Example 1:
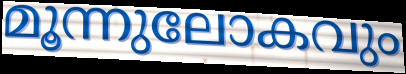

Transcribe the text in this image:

മൂന്നുലോകവും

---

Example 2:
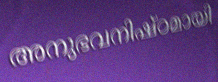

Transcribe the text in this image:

അനുഭവനിഷ്ഠമായി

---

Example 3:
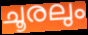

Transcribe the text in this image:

ചൂരലും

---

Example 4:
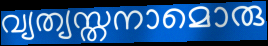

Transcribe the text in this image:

വ്യത്യസ്തനാമൊരു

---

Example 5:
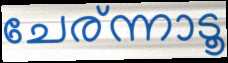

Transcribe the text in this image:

ചേര്ന്നാടൂ